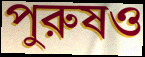
পুরুষও